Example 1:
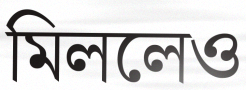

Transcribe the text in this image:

মিললেও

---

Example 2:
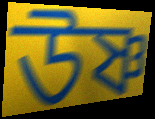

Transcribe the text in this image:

উষ্ণ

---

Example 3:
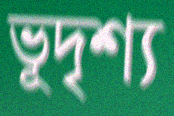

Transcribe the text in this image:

ভূদৃশ্য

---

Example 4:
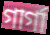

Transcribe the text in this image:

গার্গা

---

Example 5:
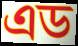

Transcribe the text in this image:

এড